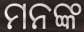
ମନଙ୍କ